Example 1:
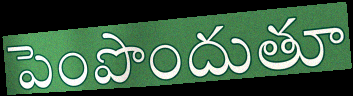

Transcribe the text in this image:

పెంపొందుతూ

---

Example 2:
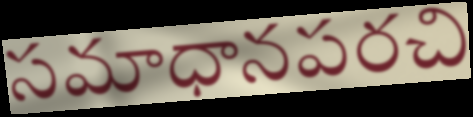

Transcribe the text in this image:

సమాధానపరచి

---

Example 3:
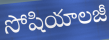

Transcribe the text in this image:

సోషియాలజీ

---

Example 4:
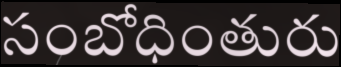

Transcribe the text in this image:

సంబోధింతురు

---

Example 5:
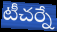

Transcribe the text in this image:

టీచర్నే